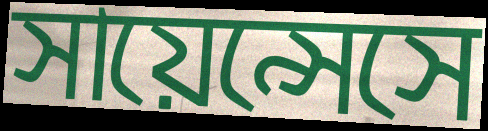
সায়েন্সেসে